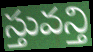
స్తువన్తి